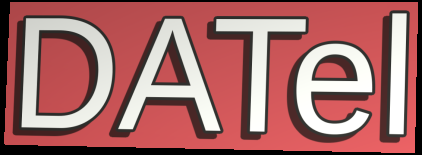
DATel